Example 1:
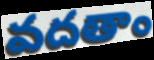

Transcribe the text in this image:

వదతాం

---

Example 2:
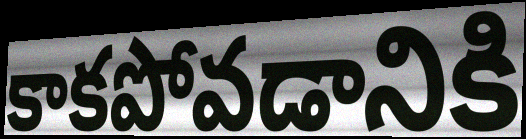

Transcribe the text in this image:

కాకపోవడానికి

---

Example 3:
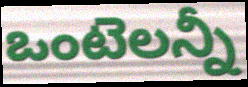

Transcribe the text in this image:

ఒంటెలన్నీ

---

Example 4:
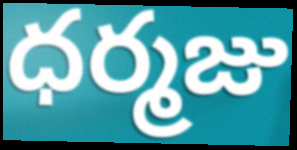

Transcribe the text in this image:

ధర్మజు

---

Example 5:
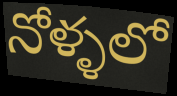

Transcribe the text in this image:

నోళ్ళలో